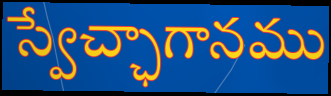
స్వేచ్ఛాగానము